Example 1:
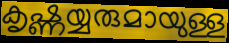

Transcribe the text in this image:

കൃഷ്ണയ്യരുമായുള്ള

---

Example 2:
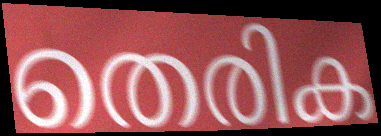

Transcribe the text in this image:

തെരിക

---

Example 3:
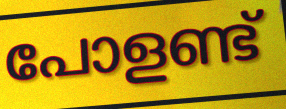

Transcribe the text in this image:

പോളണ്ട്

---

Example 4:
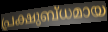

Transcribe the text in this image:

പ്രക്ഷുബ്ധമായ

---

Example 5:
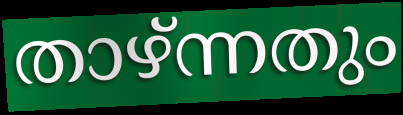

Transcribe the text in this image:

താഴ്ന്നതും